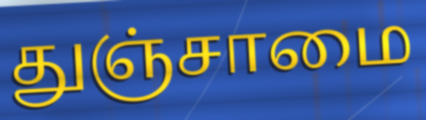
துஞ்சாமை